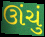
ઊંચું